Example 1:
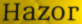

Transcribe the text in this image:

Hazor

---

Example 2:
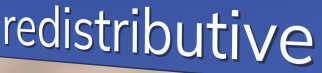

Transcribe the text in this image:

redistributive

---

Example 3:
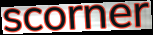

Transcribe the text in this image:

scorner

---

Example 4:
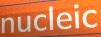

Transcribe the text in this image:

nucleic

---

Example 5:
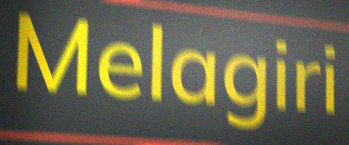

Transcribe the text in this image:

Melagiri